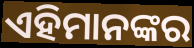
ଏହିମାନଙ୍କର